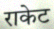
राकेट